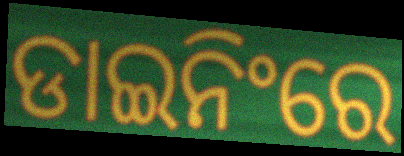
ଡାଇନିଂରେ